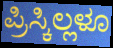
ಪ್ರಿಸ್ಕಿಲ್ಲಳೂ